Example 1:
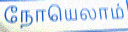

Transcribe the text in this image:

நோயெலாம்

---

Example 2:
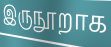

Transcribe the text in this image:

இருநூறாக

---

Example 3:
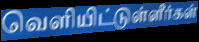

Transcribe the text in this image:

வெளியிட்டுள்ளீர்கள்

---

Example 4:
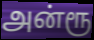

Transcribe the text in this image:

அன்ரூ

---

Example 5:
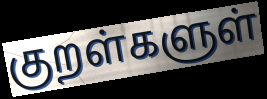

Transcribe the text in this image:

குறள்களுள்